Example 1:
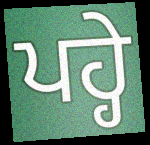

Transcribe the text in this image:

ਪਹ੍ਹੇ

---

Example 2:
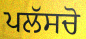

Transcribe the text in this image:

ਪਲੱਸਚੋ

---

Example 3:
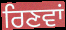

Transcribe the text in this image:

ਰਿਣਵਾਂ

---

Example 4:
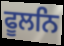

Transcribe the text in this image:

ਫੂਲਨਿ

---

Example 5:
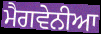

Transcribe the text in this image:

ਮੈਗਵੇਨੀਆ